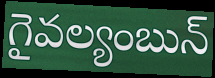
గైవల్యంబున్